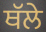
ਥੱਲੇ